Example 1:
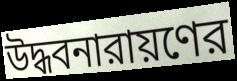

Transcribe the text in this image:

উদ্ধবনারায়ণের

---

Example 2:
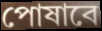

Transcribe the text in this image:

পোষাবে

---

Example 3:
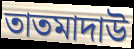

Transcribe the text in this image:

তাতমাদাউ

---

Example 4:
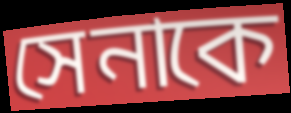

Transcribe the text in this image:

সেনাকে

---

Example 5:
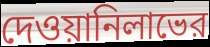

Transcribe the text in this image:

দেওয়ানিলাভের